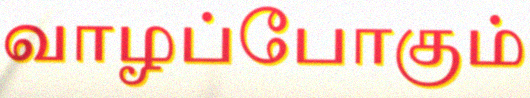
வாழப்போகும்